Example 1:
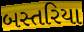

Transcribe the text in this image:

બસ્તરિયા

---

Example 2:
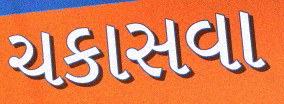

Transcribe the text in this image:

ચકાસવા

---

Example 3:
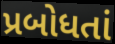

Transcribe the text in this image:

પ્રબોધતાં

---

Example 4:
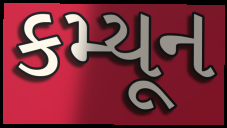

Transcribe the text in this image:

કમ્યૂન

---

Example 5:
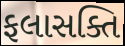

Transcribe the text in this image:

ફલાસક્તિ